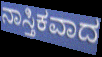
ನಾಸ್ತಿಕವಾದ